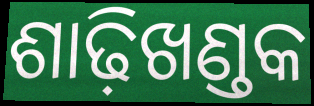
ଶାଢ଼ିଖଣ୍ଡକ